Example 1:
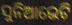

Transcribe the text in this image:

ସୁନିଆଭେଟି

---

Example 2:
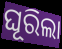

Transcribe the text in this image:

ଘୂରିଲା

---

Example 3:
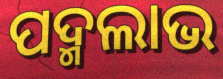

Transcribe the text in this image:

ପଦ୍ମଲାଭ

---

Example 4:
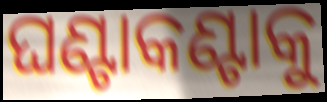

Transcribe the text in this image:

ଘଣ୍ଟାକଣ୍ଟାକୁ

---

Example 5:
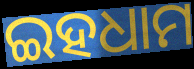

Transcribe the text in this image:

ଇହଧାମ